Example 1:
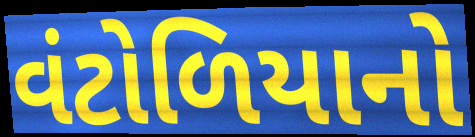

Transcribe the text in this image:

વંટોળિયાનો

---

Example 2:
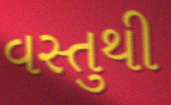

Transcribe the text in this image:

વસ્તુથી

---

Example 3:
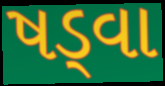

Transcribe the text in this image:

ષડ્વા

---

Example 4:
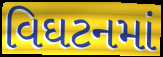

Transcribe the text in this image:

વિઘટનમાં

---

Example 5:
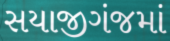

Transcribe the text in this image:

સયાજીગંજમાં